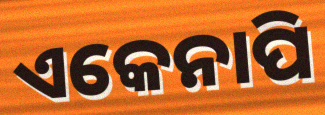
ଏକେନାପି